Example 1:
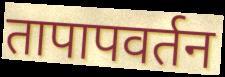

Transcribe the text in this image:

तापापवर्तन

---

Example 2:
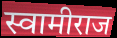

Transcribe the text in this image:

स्वामीराज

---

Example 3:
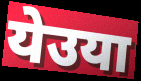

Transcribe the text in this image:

येउया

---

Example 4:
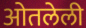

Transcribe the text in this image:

ओतलेली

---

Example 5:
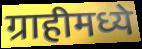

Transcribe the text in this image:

ग्राहीमध्ये